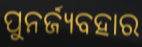
ପୁନର୍ଜ୍ୟବହାର